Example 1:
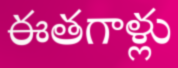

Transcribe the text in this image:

ఈతగాళ్లు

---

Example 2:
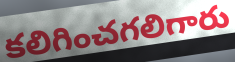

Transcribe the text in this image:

కలిగించగలిగారు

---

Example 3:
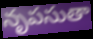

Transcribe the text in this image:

నృపసుతా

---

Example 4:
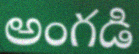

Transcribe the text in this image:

అంగడి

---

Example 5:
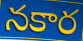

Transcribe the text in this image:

నకార